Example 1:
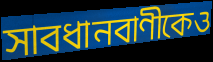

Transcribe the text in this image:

সাবধানবাণীকেও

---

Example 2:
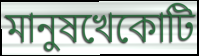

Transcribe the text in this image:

মানুষখেকোটি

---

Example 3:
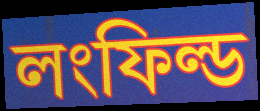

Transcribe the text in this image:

লংফিল্ড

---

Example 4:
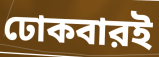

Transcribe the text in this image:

ঢোকবারই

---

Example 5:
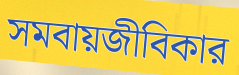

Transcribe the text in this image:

সমবায়জীবিকার